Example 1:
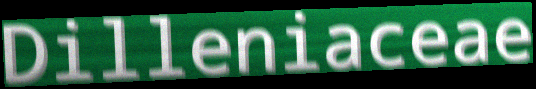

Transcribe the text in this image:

Dilleniaceae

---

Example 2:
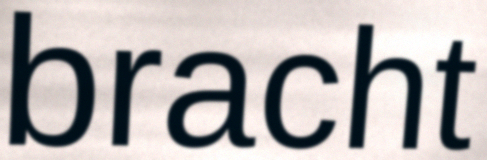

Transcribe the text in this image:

bracht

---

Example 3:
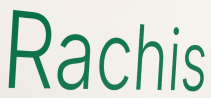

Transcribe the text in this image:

Rachis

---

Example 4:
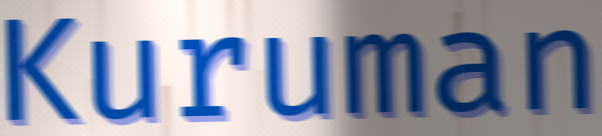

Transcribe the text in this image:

Kuruman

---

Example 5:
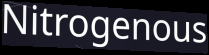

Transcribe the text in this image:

Nitrogenous